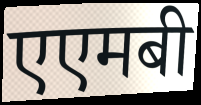
एएमबी